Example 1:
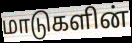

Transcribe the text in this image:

மாடுகளின்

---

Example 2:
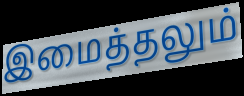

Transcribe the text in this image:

இமைத்தலும்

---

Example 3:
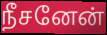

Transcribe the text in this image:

நீசனேன்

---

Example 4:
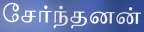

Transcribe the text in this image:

சேர்ந்தனன்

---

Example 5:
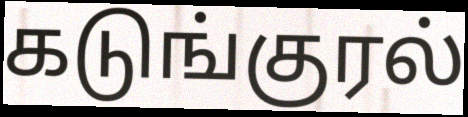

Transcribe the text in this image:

கடுங்குரல்